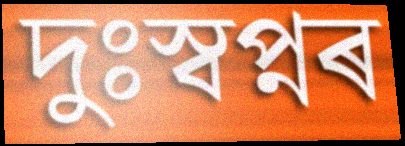
দুঃস্বপ্নৰ